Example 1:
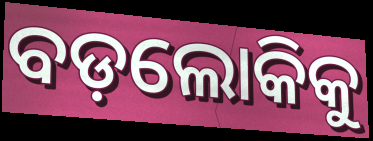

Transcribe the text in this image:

ବଡ଼ଲୋକିକୁ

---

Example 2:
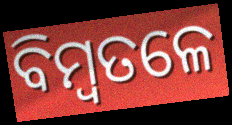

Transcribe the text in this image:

ବିମ୍ବତଳେ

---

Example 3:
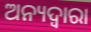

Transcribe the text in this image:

ଅନ୍ୟଦ୍ୱାରା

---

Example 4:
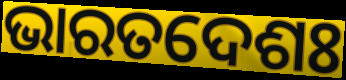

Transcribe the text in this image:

ଭାରତଦେଶଃ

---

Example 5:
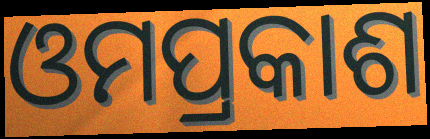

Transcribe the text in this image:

ଓମପ୍ରକାଶ